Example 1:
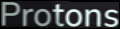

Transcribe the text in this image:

Protons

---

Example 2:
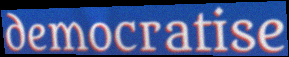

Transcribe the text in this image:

democratise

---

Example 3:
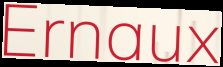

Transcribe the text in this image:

Ernaux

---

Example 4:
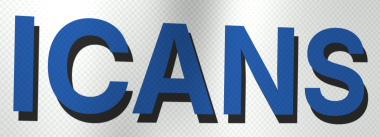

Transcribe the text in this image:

ICANS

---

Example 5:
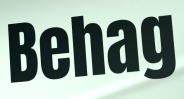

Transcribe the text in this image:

Behag